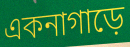
একনাগাড়ে